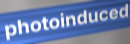
photoinduced